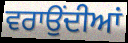
ਵਰਾਉਂਦੀਆਂ